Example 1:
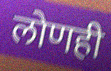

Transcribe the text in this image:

लोणही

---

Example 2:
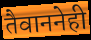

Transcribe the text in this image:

तैवाननेही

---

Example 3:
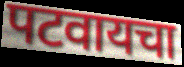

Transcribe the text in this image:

पटवायचा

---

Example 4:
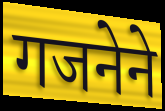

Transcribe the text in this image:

गजनेने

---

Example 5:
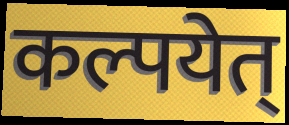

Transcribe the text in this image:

कल्पयेत्